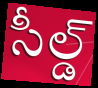
సీల్డ్